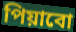
পিয়াবো